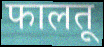
फालतू